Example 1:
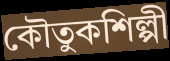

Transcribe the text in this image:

কৌতুকশিল্পী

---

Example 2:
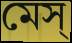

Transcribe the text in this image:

মেস্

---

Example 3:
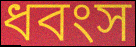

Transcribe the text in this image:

ধবংস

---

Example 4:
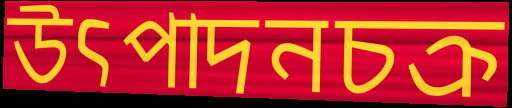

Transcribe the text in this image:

উৎপাদনচক্র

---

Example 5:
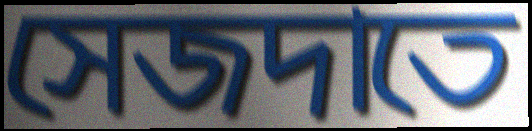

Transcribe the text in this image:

সেজদাতে